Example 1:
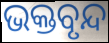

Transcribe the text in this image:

ଭକ୍ତବୃନ୍ଦ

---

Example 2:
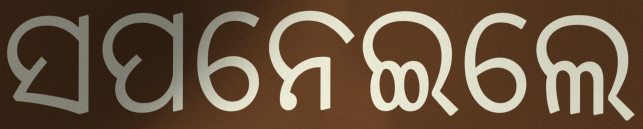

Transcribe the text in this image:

ସପନେଇଲେ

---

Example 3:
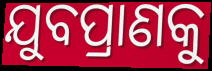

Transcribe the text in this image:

ଯୁବପ୍ରାଣକୁ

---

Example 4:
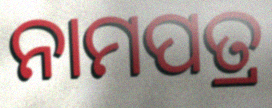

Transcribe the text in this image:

ନାମପତ୍ର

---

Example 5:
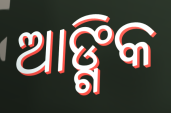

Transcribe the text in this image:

ଆଙ୍ଗିକ